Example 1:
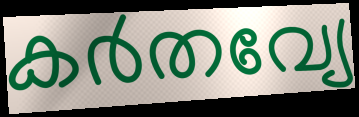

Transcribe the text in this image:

കർതവ്യേ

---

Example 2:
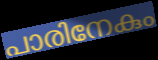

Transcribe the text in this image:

പാരിനേകും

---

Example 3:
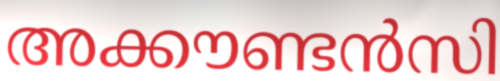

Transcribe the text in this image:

അക്കൗണ്ടൻസി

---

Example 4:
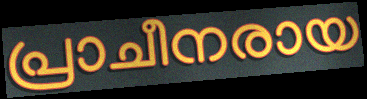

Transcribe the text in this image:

പ്രാചീനരായ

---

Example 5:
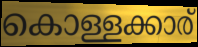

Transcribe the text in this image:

കൊള്ളക്കാര്